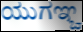
ಯುಗಞ್ಚ